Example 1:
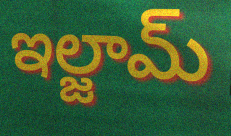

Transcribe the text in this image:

ఇల్జామ్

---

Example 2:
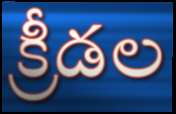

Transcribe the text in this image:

క్రీడల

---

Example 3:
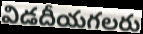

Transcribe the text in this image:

విడదీయగలరు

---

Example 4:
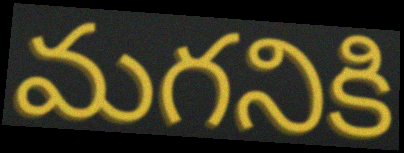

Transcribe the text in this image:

మగనికి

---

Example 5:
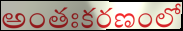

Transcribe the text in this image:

అంతఃకరణంలో